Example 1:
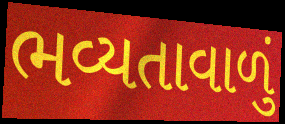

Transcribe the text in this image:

ભવ્યતાવાળું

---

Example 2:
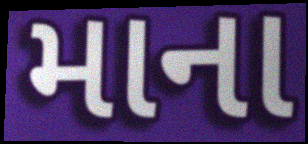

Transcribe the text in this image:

માના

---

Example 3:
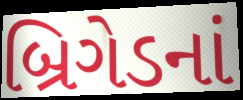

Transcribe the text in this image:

બ્રિગેડનાં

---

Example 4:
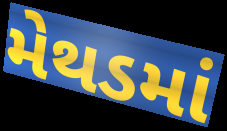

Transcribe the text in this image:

મેથડમાં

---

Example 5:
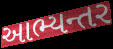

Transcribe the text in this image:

આભ્યન્તર